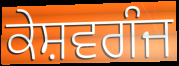
ਕੇਸ਼ਵਗੰਜ